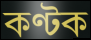
কণ্টক